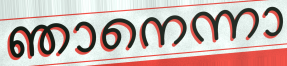
ഞാനെന്നാ